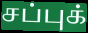
சப்புக்